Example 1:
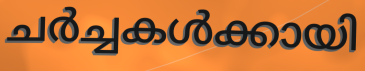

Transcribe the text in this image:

ചർച്ചകൾക്കായി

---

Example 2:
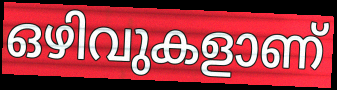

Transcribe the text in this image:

ഒഴിവുകളാണ്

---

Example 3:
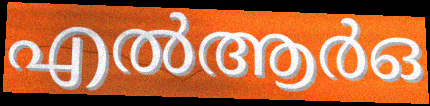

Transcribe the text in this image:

എൽആർഒ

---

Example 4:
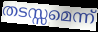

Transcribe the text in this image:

തടസ്സമെന്ന്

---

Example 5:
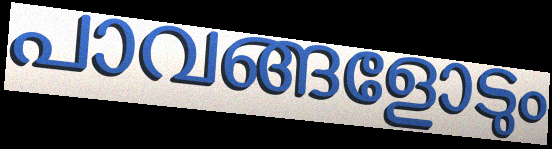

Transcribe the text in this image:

പാവങ്ങളോടും